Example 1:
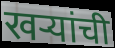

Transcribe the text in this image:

खऱ्यांची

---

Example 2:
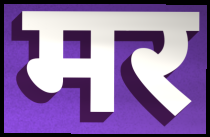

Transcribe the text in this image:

मर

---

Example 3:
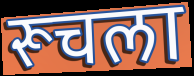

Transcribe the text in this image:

रूचला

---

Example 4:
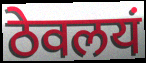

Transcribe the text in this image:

ठेवलयं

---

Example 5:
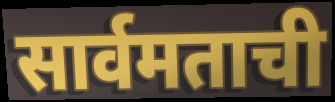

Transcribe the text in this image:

सार्वमताची